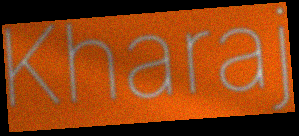
Kharaj